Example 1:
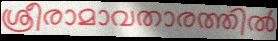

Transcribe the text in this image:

ശ്രീരാമാവതാരത്തിൽ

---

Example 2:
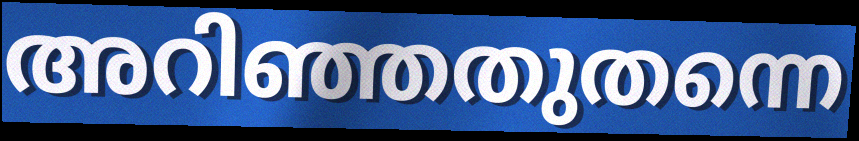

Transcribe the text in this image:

അറിഞ്ഞതുതന്നെ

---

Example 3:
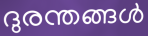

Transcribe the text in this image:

ദുരന്തങ്ങൾ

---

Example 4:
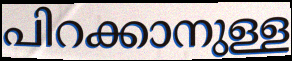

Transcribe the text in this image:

പിറക്കാനുള്ള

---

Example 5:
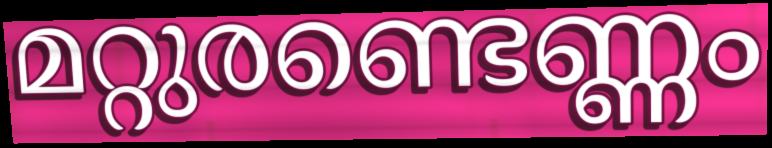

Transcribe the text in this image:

മറ്റുരണ്ടെണ്ണം